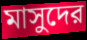
মাসুদের